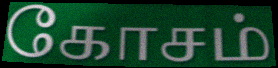
கோசம்